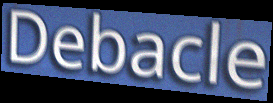
Debacle